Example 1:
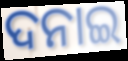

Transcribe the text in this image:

ଦନାଇ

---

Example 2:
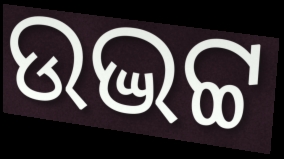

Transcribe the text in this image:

ଉଦ୍ଭଟ୍ଟ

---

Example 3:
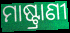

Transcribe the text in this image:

ମାଷ୍ଟ୍ରାଣୀ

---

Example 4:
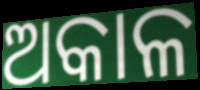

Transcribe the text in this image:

ଅକାଳ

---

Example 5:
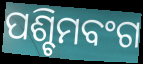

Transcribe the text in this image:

ପଶ୍ଚିମବଂଗ